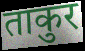
ताकुर